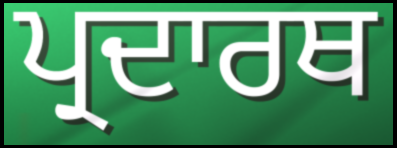
ਪ੍ਰਦਾਰਥ